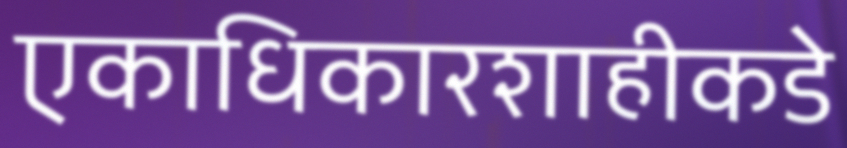
एकाधिकारशाहीकडे